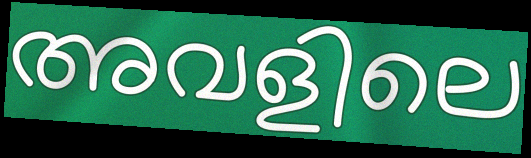
അവളിലെ